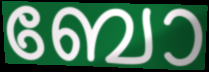
ബോ